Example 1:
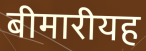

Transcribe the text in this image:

बीमारीयह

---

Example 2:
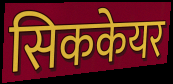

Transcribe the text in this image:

सिककेयर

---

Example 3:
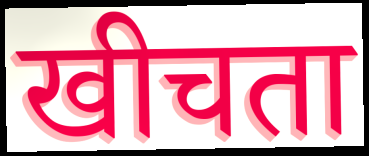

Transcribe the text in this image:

खीचता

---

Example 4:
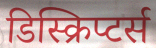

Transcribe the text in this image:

डिस्क्रिप्टर्स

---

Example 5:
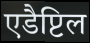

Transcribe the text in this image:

एडैप्टिल